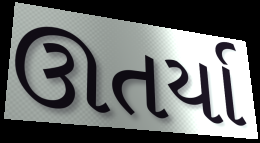
ઊતર્યા